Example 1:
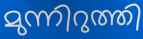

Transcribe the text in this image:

മുന്നിറുത്തി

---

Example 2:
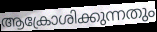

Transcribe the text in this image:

ആക്രോശിക്കുന്നതും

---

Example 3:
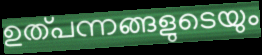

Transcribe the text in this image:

ഉത്പന്നങ്ങളുടെയും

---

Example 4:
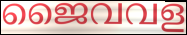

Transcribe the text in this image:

ജൈവവള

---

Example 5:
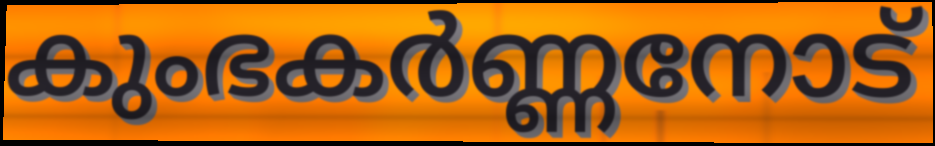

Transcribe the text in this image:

കുംഭകർണ്ണനോട്